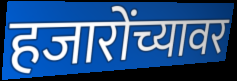
हजारोंच्यावर